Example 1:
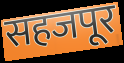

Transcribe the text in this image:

सहजपूर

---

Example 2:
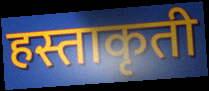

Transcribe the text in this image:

हस्ताकृती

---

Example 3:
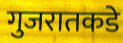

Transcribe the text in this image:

गुजरातकडे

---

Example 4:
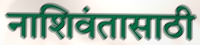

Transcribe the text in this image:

नाशिवंतासाठी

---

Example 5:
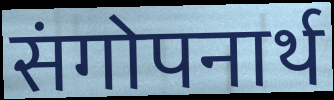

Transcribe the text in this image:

संगोपनार्थ